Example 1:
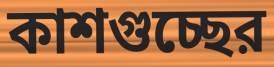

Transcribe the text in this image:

কাশগুচ্ছের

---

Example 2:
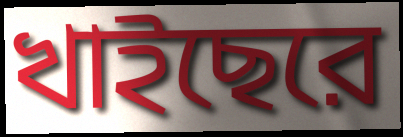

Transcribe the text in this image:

খাইছেরে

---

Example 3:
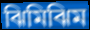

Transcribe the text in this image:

ঝিমিঝিম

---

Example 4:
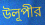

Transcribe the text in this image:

উলূপীর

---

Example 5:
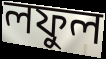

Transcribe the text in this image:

লফুল